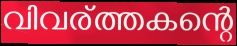
വിവര്ത്തകന്റെ